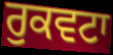
ਰੁਕਵਟਾ